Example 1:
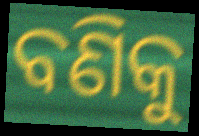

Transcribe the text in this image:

ବଣିକୁ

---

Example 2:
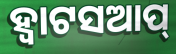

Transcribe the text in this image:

ହ୍ବାଟସଆପ୍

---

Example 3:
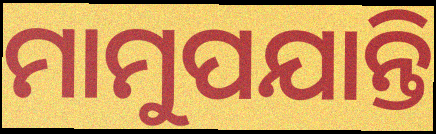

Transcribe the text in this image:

ମାମୁପଯାନ୍ତି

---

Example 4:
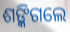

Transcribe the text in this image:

ଶଙ୍କିଗଲେ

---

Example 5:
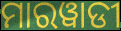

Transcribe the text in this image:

ମାରୱାଡୀ